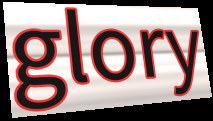
glory